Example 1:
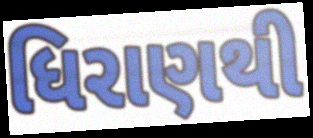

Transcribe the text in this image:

ધિરાણથી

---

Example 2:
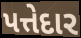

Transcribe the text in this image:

પત્તેદાર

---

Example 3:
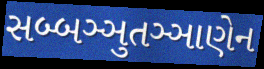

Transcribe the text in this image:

સબ્બઞ્ઞુતઞ્ઞાણેન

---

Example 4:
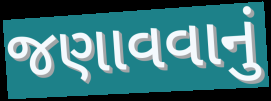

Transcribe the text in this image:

જણાવવાનું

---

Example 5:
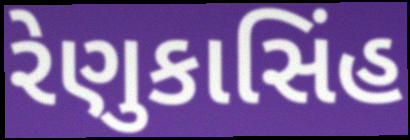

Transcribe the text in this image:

રેણુકાસિંહ